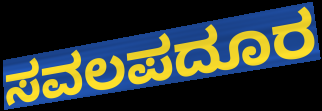
ಸವಲಪದೂರ